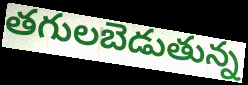
తగులబెడుతున్న